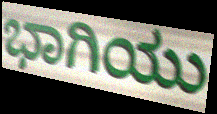
ಭಾಗಿಯು